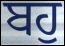
ਬਹੁ